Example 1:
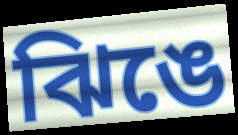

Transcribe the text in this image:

ঝিঙে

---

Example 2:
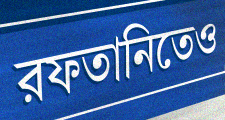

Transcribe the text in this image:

রফতানিতেও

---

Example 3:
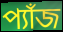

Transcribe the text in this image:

প্যাঁজ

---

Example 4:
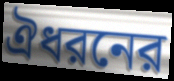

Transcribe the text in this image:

ঐধরনের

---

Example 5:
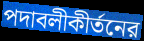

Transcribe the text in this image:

পদাবলীকীর্তনের